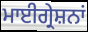
ਮਾਈਗ੍ਰੇਸ਼ਨਾਂ